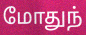
மோதுந்